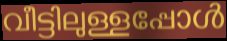
വീട്ടിലുള്ളപ്പോൾ